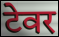
टेवर